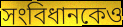
সংবিধানকেও